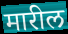
मारील